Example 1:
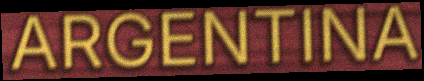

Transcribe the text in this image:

ARGENTINA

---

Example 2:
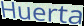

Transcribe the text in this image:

Huerta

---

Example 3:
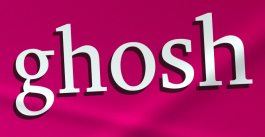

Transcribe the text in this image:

ghosh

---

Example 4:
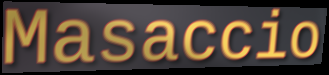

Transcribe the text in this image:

Masaccio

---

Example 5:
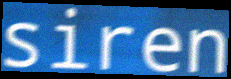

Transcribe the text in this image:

siren